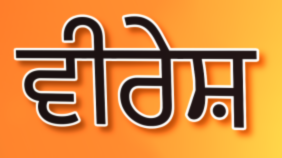
ਵੀਰੇਸ਼